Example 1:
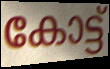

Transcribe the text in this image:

കോട്ട്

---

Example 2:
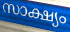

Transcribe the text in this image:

സാക്ഷ്യം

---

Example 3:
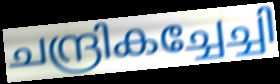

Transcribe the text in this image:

ചന്ദ്രികച്ചേച്ചി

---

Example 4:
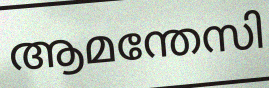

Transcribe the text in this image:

ആമന്തേസി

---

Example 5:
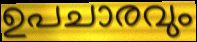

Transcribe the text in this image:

ഉപചാരവും